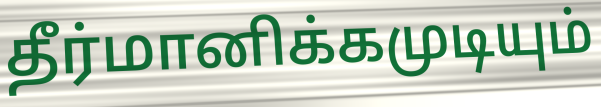
தீர்மானிக்கமுடியும்